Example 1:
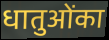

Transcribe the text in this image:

धातुओंका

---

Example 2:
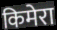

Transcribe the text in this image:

किमेरा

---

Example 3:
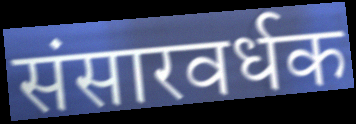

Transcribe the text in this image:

संसारवर्धक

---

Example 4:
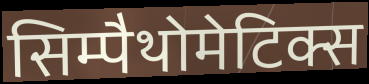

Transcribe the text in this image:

सिम्पैथोमेटिक्स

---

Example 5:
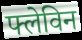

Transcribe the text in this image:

फ्लेविन